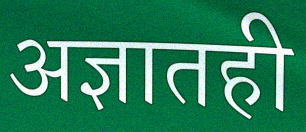
अज्ञातही